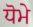
ਧੋਮੇ